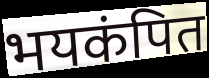
भयकंपित